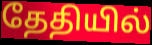
தேதியில்